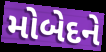
મોબેદને